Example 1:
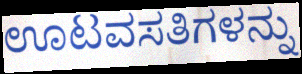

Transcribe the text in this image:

ಊಟವಸತಿಗಳನ್ನು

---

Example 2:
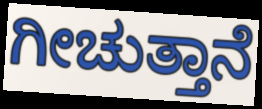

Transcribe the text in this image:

ಗೀಚುತ್ತಾನೆ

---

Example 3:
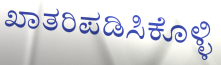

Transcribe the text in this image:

ಖಾತರಿಪಡಿಸಿಕೊಳ್ಳಿ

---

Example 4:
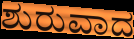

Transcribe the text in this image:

ಶುರುವಾದ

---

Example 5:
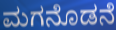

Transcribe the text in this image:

ಮಗನೊಡನೆ